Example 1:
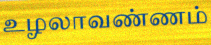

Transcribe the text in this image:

உழலாவண்ணம்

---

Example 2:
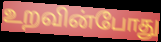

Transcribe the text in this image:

உறவின்போது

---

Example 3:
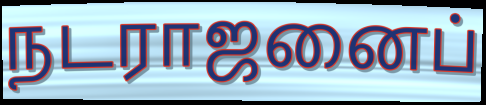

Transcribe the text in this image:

நடராஜனைப்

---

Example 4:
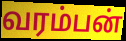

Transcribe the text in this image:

வரம்பன்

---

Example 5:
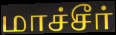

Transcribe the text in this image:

மாச்சீர்